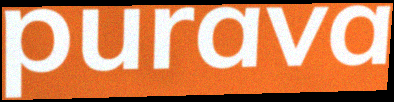
purava